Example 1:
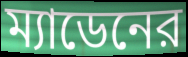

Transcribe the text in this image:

ম্যাডেনের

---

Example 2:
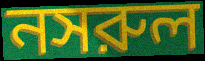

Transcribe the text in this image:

নসরুল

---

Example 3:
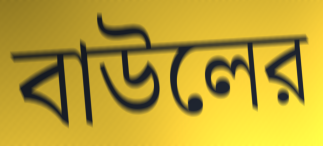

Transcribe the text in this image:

বাউলের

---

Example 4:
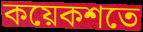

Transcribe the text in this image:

কয়েকশতে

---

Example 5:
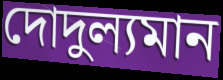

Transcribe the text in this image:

দোদুল্যমান